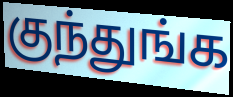
குந்துங்க